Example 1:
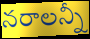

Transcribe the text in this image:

నరాలన్నీ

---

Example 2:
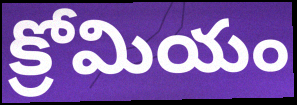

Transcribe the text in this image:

క్రోమియం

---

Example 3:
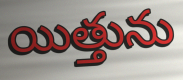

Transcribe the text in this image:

యిత్తును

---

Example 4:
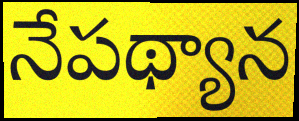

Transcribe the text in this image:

నేపథ్యాన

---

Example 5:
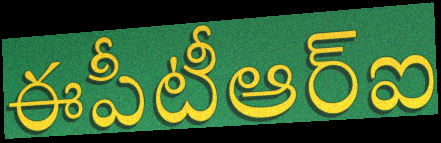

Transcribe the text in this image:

ఈపీటీఆర్ఐ